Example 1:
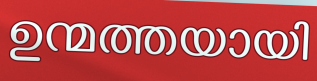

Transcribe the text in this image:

ഉന്മത്തയായി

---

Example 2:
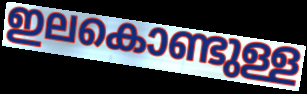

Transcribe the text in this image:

ഇലകൊണ്ടുള്ള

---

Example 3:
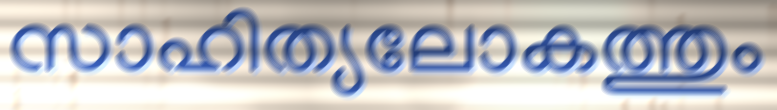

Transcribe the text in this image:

സാഹിത്യലോകത്തും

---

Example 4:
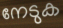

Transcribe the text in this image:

നേടുക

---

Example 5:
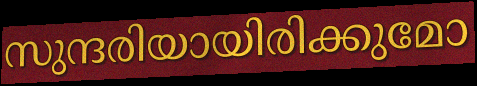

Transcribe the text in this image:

സുന്ദരിയായിരിക്കുമോ